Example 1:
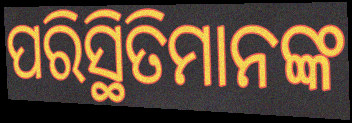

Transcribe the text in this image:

ପରିସ୍ଥିତିମାନଙ୍କ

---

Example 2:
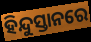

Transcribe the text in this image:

ହିନ୍ଦୁସ୍ତାନରେ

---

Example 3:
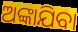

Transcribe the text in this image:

ଅଙ୍କାଯିବା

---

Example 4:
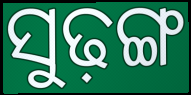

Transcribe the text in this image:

ସୁଢ଼ଙ୍ଗ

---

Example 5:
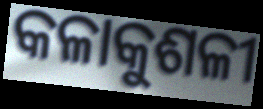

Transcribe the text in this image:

କଳାକୁଶଳୀ